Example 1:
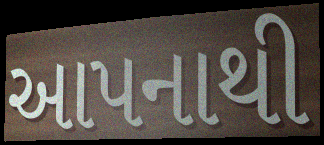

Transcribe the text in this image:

આપનાથી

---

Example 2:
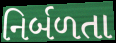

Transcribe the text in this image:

નિર્બળતા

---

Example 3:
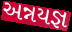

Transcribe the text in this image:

અન્નયજ્ઞ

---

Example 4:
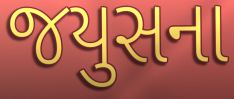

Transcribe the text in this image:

જયુસના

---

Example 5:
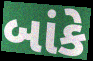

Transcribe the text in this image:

બાંકે